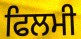
ਫਿਲਮੀ